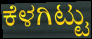
ಕೆಳಗಿಟ್ಟು